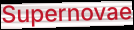
Supernovae